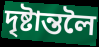
দৃষ্টান্তলৈ